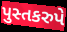
પુસ્તકરુપે